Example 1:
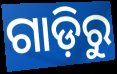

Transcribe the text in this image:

ଗାଡ଼ିରୁ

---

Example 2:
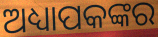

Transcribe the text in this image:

ଅଧ୍ୟାପକଙ୍କର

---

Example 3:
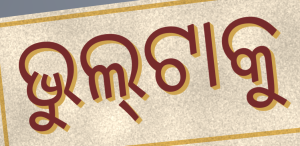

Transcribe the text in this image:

ଭୁଲ୍‍ଟାକୁ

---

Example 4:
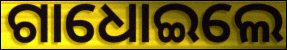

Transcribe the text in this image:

ଗାଧୋଇଲେ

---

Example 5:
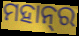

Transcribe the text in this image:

ମହାନ୍‌ର